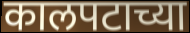
कालपटाच्या